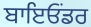
ਬਾਇਓਂਡਰ